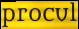
procul